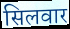
सिलवार